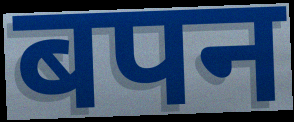
बपन